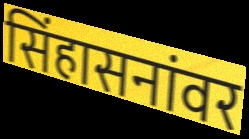
सिंहासनांवर